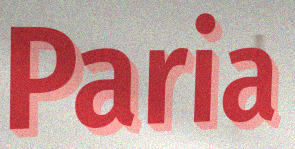
Paria